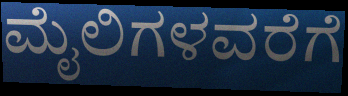
ಮೈಲಿಗಳವರೆಗೆ